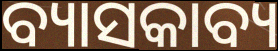
ବ୍ୟାସକାବ୍ୟ